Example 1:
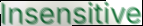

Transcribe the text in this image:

Insensitive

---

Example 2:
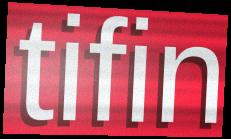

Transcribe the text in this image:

tifin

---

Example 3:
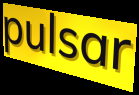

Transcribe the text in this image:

pulsar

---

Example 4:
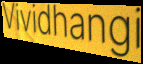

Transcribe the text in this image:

Vividhangi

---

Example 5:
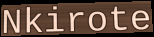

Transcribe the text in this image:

Nkirote